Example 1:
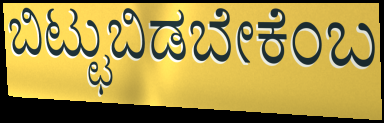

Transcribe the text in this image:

ಬಿಟ್ಟುಬಿಡಬೇಕೆಂಬ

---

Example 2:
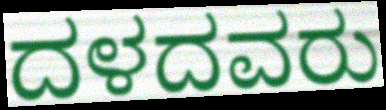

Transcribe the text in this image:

ದಳದವರು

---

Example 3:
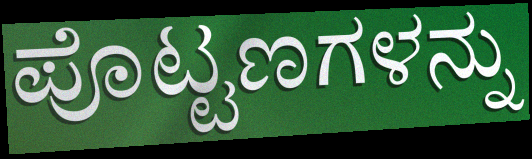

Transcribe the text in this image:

ಪೊಟ್ಟಣಗಳನ್ನು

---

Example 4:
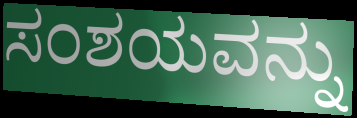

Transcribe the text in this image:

ಸಂಶಯವನ್ನು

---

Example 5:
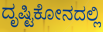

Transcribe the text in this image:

ದೃಷ್ಟಿಕೋನದಲ್ಲಿ